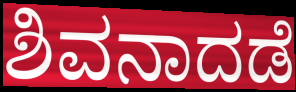
ಶಿವನಾದಡೆ